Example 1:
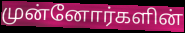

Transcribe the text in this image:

முன்னோர்களின்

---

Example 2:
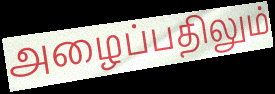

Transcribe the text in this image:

அழைப்பதிலும்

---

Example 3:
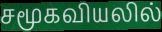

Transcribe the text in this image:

சமூகவியலில்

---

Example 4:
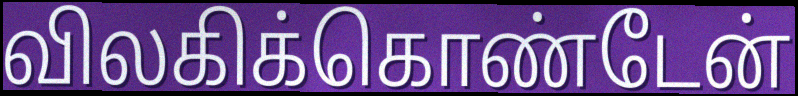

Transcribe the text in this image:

விலகிக்கொண்டேன்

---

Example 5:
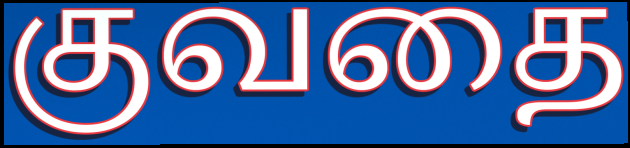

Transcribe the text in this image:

குவதை